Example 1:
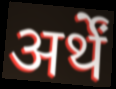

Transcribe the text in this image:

अर्थें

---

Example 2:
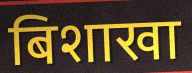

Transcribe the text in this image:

बिशाखा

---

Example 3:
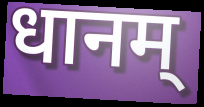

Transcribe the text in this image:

धानम्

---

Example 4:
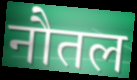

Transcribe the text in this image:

नौतल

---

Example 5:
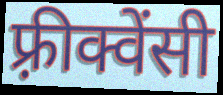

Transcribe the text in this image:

फ़्रीक्वेंसी